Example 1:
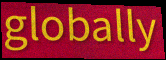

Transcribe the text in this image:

globally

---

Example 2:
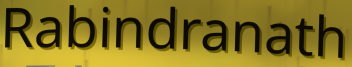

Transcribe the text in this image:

Rabindranath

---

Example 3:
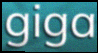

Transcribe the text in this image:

giga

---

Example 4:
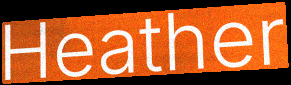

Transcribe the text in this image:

Heather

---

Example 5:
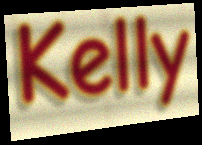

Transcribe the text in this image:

Kelly